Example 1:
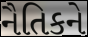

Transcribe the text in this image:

નૈતિકને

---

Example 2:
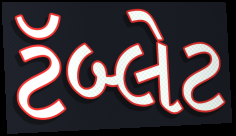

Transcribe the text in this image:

ટૅબ્લેટ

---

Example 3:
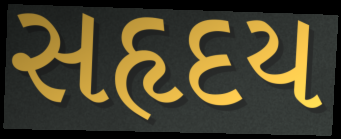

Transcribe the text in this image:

સહૃદય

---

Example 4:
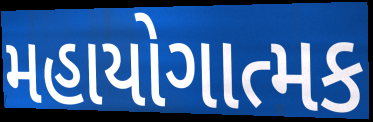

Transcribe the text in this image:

મહાયોગાત્મક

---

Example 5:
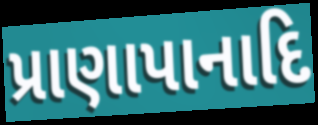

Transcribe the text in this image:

પ્રાણાપાનાદિ